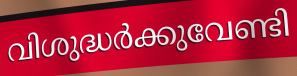
വിശുദ്ധർക്കുവേണ്ടി